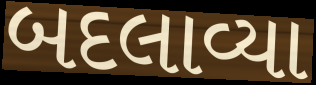
બદલાવ્યા